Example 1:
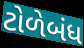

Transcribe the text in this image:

ટોળેબંધ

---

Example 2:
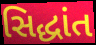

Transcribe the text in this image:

સિદ્ધાંત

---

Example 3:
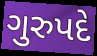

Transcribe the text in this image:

ગુરુપદે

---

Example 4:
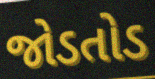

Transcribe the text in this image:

જોડતોડ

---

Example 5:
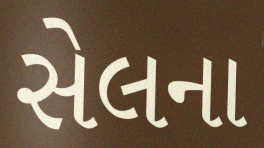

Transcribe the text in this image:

સેલના